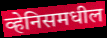
व्हेनिसमधील